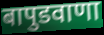
बापुडवाणा